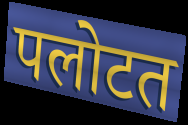
पलोटत